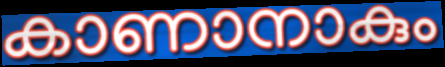
കാണാനാകും